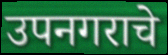
उपनगराचे